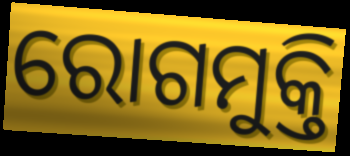
ରୋଗମୁକ୍ତି